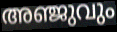
അഞ്ജുവും